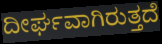
ದೀರ್ಘವಾಗಿರುತ್ತದೆ